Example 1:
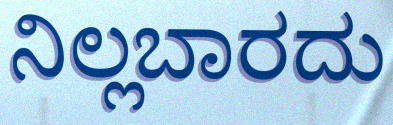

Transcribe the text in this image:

ನಿಲ್ಲಬಾರದು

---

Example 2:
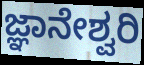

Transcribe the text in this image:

ಜ್ಞಾನೇಶ್ವರಿ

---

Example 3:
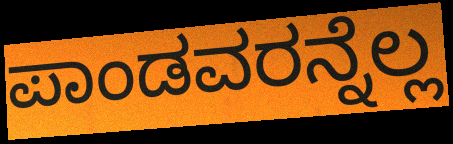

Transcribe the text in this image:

ಪಾಂಡವರನ್ನೆಲ್ಲ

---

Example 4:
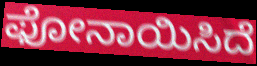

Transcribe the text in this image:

ಫೋನಾಯಿಸಿದೆ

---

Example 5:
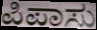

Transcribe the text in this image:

ಪಿಪಾಸು